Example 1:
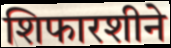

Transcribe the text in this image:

शिफारशीने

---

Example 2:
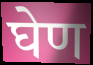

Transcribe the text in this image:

घेण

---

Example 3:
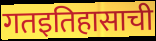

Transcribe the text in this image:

गतइतिहासाची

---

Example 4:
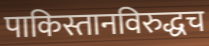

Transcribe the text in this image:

पाकिस्तानविरुद्धच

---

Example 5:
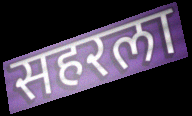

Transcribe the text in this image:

सहरला